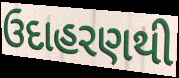
ઉદાહરણથી